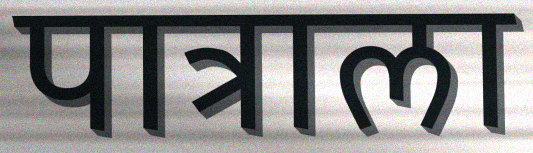
पात्राला